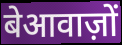
बेआवाज़ों